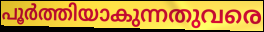
പൂർത്തിയാകുന്നതുവരെ